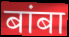
बांबा